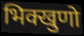
भिक्खुणो